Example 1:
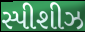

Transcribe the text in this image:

સ્પીશીઝ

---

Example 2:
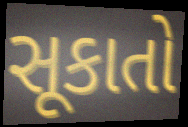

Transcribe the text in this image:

સૂકાતો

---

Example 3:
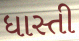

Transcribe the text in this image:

ધાસ્તી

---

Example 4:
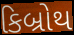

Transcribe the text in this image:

કિબ્રોથ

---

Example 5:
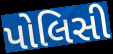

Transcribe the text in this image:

પોલિસી